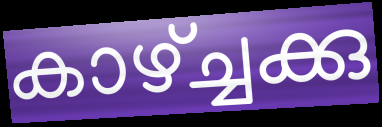
കാഴ്ച്ചക്കു